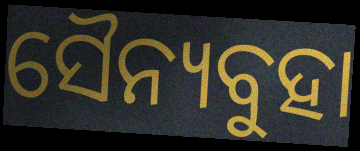
ସୈନ୍ୟବୁହା